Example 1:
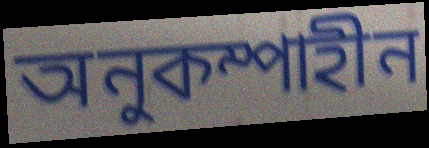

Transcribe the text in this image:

অনুকম্পাহীন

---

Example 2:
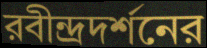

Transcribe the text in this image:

রবীন্দ্রদর্শনের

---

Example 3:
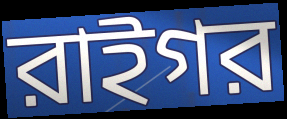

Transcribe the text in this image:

রাইগর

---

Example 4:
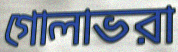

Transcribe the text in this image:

গোলাভরা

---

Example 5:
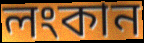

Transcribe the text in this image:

লংকান